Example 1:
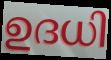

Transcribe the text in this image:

ഉദധി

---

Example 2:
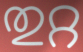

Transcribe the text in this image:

തുറ്റ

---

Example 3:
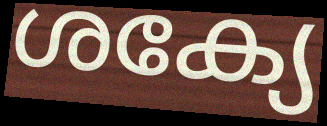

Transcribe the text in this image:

ശക്യേ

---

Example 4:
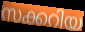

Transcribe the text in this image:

സക്കറിയ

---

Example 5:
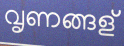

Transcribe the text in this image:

വൃണങ്ങള്